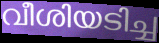
വീശിയടിച്ച